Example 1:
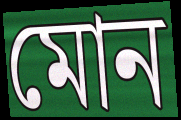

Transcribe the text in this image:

মোন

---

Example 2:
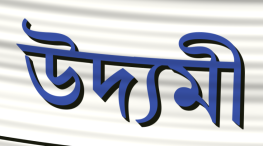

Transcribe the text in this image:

উদ্যমী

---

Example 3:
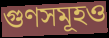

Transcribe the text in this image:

গুণসমূহও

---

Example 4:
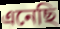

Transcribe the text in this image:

এনেছি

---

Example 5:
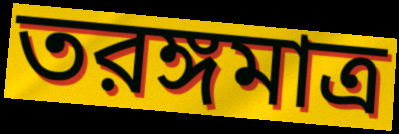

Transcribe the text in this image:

তরঙ্গমাত্র